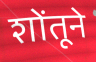
शोंतूने